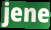
jene